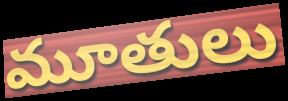
మూతులు